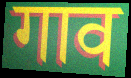
गाव